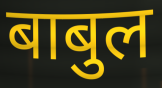
बाबुल